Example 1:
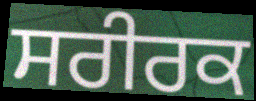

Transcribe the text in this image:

ਸਰੀਰਕ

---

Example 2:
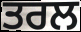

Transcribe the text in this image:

ਤਰਲ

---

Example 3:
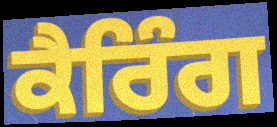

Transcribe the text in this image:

ਕੈਰਿੰਗ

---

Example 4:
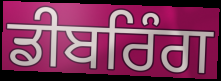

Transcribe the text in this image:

ਡੀਬਰਿੰਗ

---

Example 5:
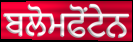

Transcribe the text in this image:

ਬਲੋਮਫੋਂਟੇਨ